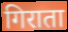
गिराता